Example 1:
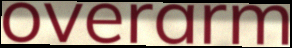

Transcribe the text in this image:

overarm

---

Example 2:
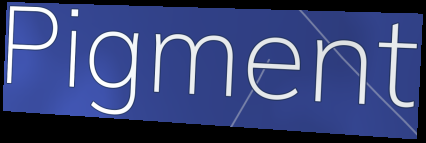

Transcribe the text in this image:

Pigment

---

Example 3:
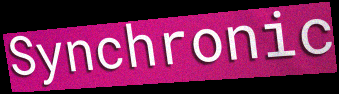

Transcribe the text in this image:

Synchronic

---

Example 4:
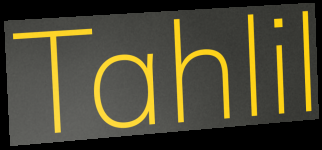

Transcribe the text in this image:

Tahlil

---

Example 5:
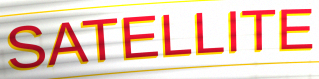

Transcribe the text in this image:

SATELLITE